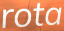
rota